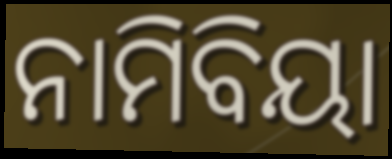
ନାମିବିୟା